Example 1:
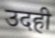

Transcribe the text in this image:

उदही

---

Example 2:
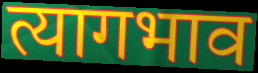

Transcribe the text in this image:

त्यागभाव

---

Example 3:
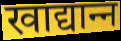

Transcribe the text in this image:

खाद्यान्‍न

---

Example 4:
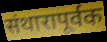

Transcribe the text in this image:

संथारापूर्वक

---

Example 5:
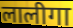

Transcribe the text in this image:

लालीगा